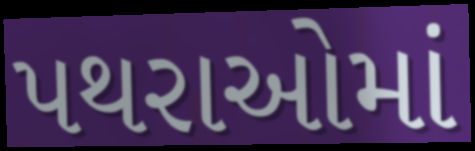
પથરાઓમાં